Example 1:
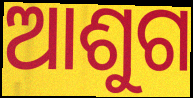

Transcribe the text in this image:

ଆଶୁଗ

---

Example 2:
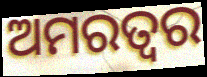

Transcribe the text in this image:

ଅମରତ୍ୱର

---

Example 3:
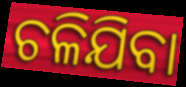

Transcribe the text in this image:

ଚଳିଯିବା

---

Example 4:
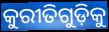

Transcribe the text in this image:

କୁରୀତିଗୁଡ଼ିକୁ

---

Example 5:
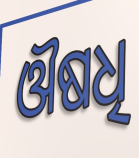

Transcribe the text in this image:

ଔଷଧି